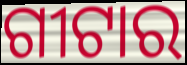
ଗୀଟାର